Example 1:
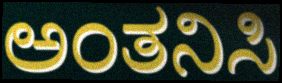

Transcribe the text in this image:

ಅಂತನಿಸಿ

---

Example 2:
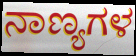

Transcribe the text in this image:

ನಾಣ್ಯಗಳ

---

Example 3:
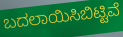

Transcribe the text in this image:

ಬದಲಾಯಿಸಿಬಿಟ್ಟಿವೆ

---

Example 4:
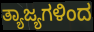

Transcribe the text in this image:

ತ್ಯಾಜ್ಯಗಳಿಂದ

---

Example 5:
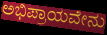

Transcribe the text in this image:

ಅಭಿಪ್ರಾಯವೇನು